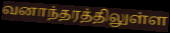
வனாந்தரத்திலுள்ள